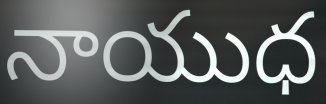
నాయుధ